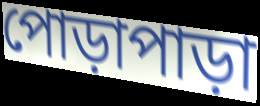
পোড়াপাড়া